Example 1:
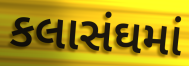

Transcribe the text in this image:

કલાસંઘમાં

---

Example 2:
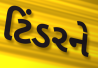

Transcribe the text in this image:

ટિંડરને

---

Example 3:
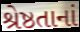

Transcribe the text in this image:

શ્રેષ્ઠતાનાં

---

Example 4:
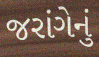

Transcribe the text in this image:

જરાંગેનું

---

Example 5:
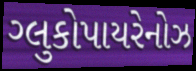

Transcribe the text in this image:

ગ્લુકોપાયરેનોઝ